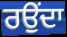
ਰਉਂਦਾ